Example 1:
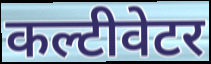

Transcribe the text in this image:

कल्टीवेटर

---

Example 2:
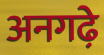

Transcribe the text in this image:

अनगढ़े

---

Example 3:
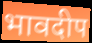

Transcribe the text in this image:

भावदीप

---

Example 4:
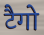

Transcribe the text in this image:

टैगो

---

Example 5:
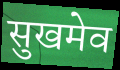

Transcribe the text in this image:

सुखमेव